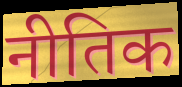
नीतिक